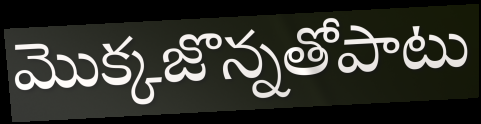
మొక్కజొన్నతోపాటు